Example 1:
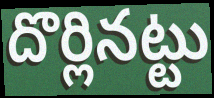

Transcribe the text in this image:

దొర్లినట్టు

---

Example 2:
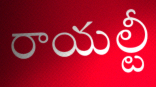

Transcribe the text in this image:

రాయల్టీ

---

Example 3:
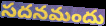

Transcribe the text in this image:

సదనమందు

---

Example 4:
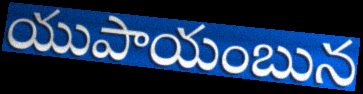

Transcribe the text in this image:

యుపాయంబున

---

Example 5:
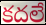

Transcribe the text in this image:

కదలే